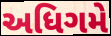
અધિગમે